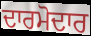
ਦਾਰਮੋਦਾਰ